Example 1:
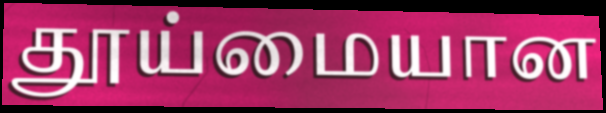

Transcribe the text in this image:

தூய்மையான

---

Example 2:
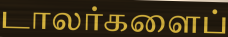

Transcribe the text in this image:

டாலர்களைப்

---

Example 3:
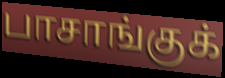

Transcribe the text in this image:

பாசாங்குக்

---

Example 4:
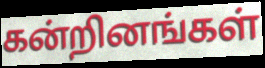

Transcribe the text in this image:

கன்றினங்கள்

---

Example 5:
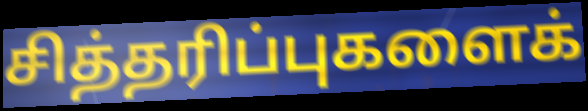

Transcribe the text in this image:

சித்தரிப்புகளைக்